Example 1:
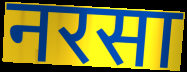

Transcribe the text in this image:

नरसा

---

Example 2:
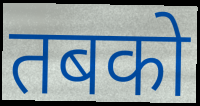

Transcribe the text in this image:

तबको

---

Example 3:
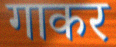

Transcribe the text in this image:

गाकर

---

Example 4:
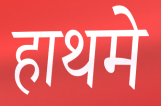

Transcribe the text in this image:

हाथमे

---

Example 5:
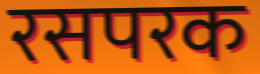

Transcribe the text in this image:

रसपरक